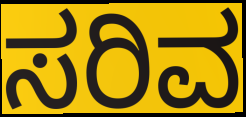
ಸರಿವ